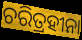
ଚରିତ୍ରହୀନା